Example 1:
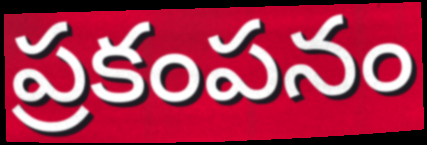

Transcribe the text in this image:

ప్రకంపనం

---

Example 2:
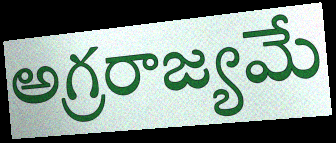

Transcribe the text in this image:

అగ్రరాజ్యమే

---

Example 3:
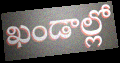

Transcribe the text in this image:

ఖండాల్లో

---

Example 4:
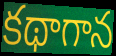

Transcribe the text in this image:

కథాగాన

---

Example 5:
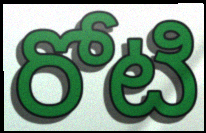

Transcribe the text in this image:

రోటి